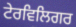
ਟੇਰਵਿਲਿਗਰ